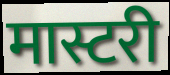
मास्टरी